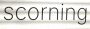
scorning